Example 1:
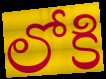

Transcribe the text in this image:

లోకి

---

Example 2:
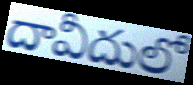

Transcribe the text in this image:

దావీదులో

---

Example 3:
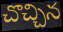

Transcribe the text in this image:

చొచ్చిన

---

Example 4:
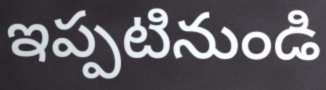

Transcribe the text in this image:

ఇప్పటినుండి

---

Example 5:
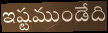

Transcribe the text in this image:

ఇష్టముండేది